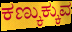
ಕಣ್ಕುಕ್ಕುವ